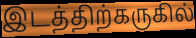
இடத்திற்கருகில்